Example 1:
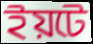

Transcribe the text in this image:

ইয়টে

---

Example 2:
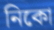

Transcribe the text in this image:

নিকো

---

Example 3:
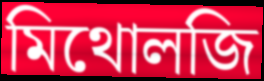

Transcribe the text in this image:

মিথোলজি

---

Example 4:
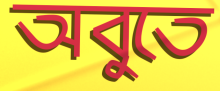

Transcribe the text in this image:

অবুতে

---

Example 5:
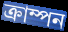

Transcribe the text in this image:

ক্রাম্পন